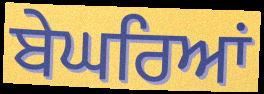
ਬੇਘਰਿਆਂ